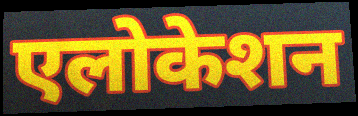
एलोकेशन